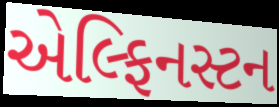
એલ્ફિનસ્ટન